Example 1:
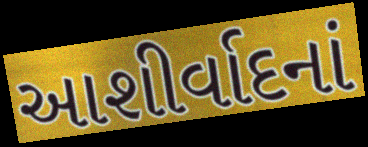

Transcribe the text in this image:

આશીર્વાદનાં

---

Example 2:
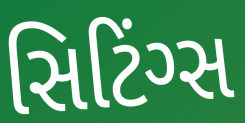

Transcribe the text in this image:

સિટિંગ્સ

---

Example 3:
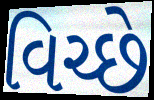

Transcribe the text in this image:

વિચ્છે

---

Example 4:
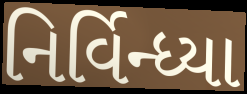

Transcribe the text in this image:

નિર્વિન્ધ્યા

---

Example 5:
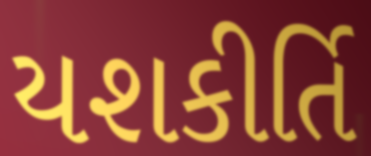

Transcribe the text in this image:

યશકીર્તિ